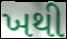
ખથી